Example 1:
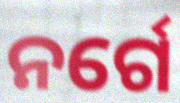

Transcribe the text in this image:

ନର୍ଗେ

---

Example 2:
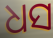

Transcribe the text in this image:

ଧସ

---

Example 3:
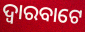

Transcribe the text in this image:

ଦ୍ୱାରବାଟେ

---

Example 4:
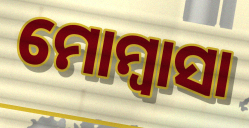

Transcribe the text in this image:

ମୋମ୍ବାସା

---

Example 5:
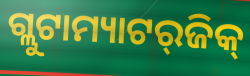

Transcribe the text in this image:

ଗ୍ଲୁଟାମ୍ୟାଟର୍‌ଜିକ୍